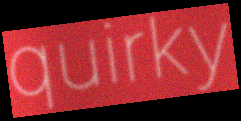
quirky